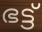
ഭട്ട്